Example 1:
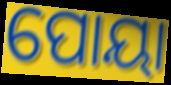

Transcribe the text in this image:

ପୋୟା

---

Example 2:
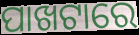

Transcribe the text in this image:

ପାଖଟାରେ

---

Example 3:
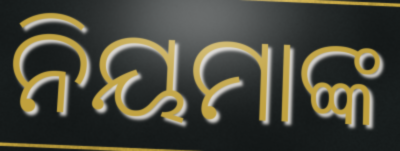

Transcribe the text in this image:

ନିୟମାଙ୍କ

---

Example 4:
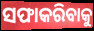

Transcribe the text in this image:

ସଫାକରିବାକୁ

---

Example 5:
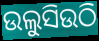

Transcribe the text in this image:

ଉଲୁସିଉଠି